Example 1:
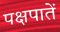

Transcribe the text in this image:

पक्षपातें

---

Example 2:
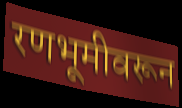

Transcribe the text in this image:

रणभूमीवरून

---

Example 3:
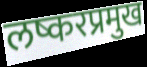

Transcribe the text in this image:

लष्करप्रमुख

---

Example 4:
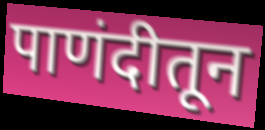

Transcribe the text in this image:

पाणंदीतून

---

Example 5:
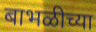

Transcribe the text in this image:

बाभळीच्या